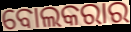
ବୋଲକରାର